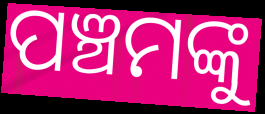
ପଞ୍ଚମଙ୍କୁ